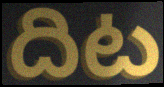
దిట